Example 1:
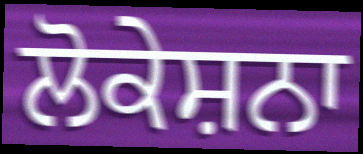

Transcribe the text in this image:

ਲੋਕੇਸ਼ਨਾ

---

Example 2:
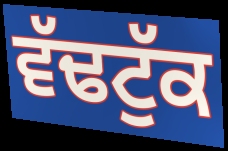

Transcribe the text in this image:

ਵੱਢਟੁੱਕ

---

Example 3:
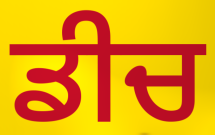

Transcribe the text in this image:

ਡੀਚ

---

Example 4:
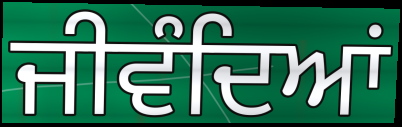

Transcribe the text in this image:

ਜੀਵੰਦਿਆਂ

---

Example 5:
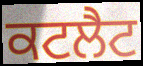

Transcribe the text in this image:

ਕਟਲੈਟ